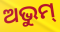
ଅଭୁମ୍